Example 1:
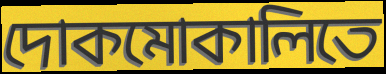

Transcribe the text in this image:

দোকমোকালিতে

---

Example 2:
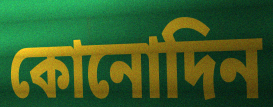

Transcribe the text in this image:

কোনোদিন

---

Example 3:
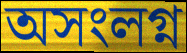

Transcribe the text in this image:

অসংলগ্ন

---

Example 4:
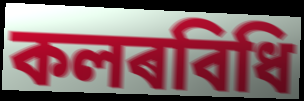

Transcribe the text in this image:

কলৰবিধি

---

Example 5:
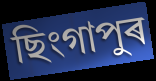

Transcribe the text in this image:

ছিংগাপুৰ